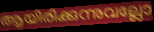
ആയിരിക്കുന്നുവല്ലോ